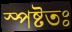
স্পষ্টতঃ